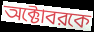
অক্টোবরকে